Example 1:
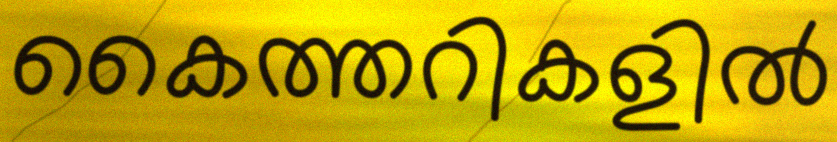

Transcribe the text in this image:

കൈത്തറികളിൽ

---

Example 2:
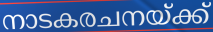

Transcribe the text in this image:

നാടകരചനയ്ക്ക്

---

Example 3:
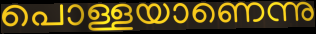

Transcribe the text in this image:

പൊള്ളയാണെന്നു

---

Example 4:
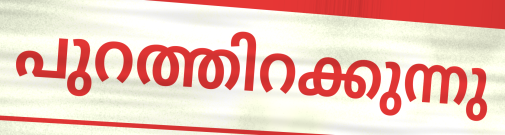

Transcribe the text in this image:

പുറത്തിറക്കുന്നു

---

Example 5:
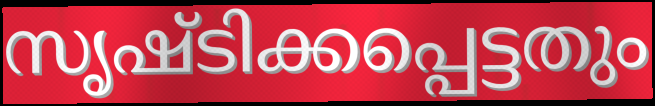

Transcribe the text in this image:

സൃഷ്ടിക്കപ്പെട്ടതും